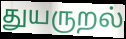
துயருறல்